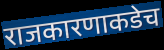
राजकारणाकडेच